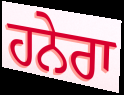
ਹਨੇਰਾ